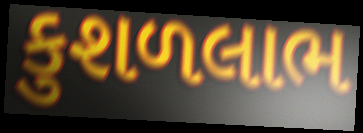
કુશળલાભ